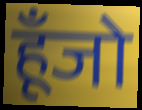
हूँजो